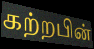
கற்றபின்